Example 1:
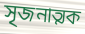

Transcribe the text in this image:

সৃজনাত্মক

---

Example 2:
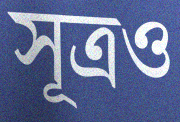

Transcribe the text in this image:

সূত্ৰও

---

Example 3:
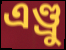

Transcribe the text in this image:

এণ্ড্ৰু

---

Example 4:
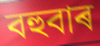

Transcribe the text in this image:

বহুবাৰ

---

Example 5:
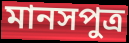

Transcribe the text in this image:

মানসপুত্ৰ